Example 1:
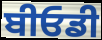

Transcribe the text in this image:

ਬੀਓਡੀ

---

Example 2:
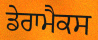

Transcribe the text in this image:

ਡੇਰਾਮੈਕਸ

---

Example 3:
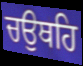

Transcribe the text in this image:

ਚਉਥਹਿ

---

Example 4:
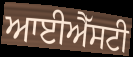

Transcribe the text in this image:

ਆਈਐੱਸਟੀ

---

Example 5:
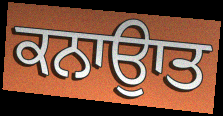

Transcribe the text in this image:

ਕਨਾਉਾਤ